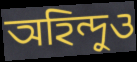
অহিন্দুও